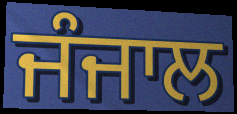
ਜੰਜਾਲ